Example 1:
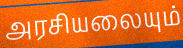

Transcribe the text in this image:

அரசியலையும்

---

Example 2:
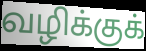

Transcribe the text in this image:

வழிக்குக்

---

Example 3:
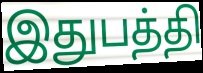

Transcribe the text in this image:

இதுபத்தி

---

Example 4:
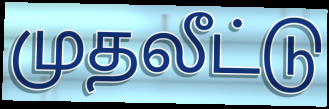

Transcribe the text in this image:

முதலீட்டு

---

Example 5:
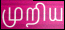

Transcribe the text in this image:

முறிய